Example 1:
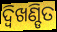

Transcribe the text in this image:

ଦ୍ଵିଖଣ୍ଡିତ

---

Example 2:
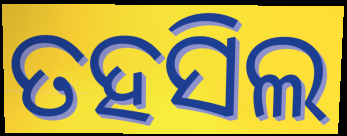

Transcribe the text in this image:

ତହସିଲ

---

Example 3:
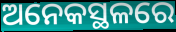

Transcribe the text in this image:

ଅନେକସ୍ଥଳରେ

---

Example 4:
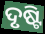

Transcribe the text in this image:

ଦୃଷ୍ଟି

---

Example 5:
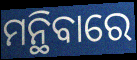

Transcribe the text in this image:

ମନ୍ଥିବାରେ